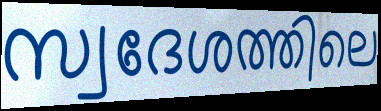
സ്വദേശത്തിലെ